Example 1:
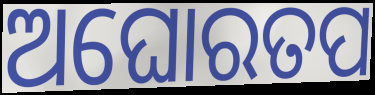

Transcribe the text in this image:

ଅଘୋରତପ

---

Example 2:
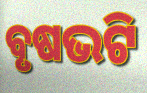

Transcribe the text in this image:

ବୃଷଭଟି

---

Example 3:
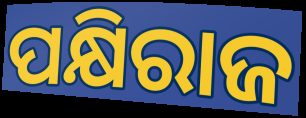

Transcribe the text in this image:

ପକ୍ଷିରାଜ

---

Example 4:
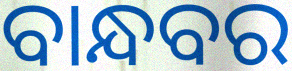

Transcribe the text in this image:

ବାନ୍ଧବର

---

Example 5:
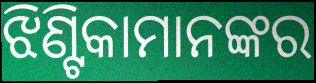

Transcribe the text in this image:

ଝିଣ୍ଟିକାମାନଙ୍କର